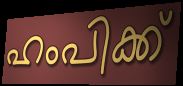
ഹംപിക്ക്